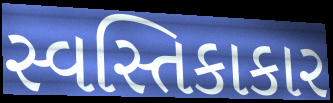
સ્વસ્તિકાકાર